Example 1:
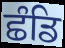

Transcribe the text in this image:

ਛੰਡਿ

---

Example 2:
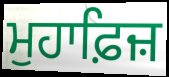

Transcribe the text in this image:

ਮੁਹਾਫ਼ਿਜ਼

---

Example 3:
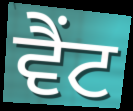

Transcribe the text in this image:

ਵੈਂਟ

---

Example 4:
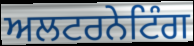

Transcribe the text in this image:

ਅਲਟਰਨੇਟਿੰਗ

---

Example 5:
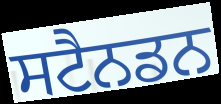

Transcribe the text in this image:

ਸਟੈਨਡਨ